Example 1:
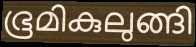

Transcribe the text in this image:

ഭൂമികുലുങ്ങി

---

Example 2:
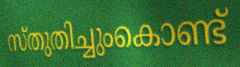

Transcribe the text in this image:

സ്തുതിച്ചുംകൊണ്ട്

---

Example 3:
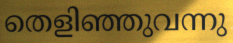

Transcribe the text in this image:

തെളിഞ്ഞുവന്നു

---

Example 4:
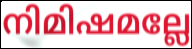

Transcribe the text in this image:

നിമിഷമല്ലേ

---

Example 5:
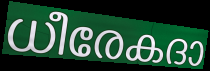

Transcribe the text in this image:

ധീരേകദാ